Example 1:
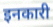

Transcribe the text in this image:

इनकारी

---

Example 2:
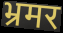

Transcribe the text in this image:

भ्रमर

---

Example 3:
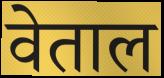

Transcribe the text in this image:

वेताल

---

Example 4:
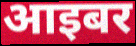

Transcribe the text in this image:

आइबर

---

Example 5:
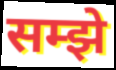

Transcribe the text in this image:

सम्झे